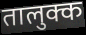
तालुक्क